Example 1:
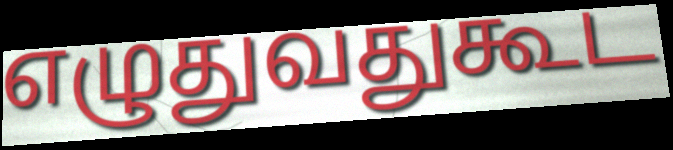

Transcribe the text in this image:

எழுதுவதுகூட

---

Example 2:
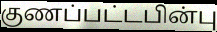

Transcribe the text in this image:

குணப்பட்டபின்பு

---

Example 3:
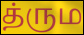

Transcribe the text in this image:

த்ரும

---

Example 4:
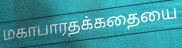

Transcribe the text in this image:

மகாபாரதக்கதையை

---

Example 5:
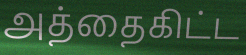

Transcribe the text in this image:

அத்தைகிட்ட